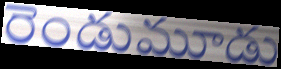
రెండుమూడు